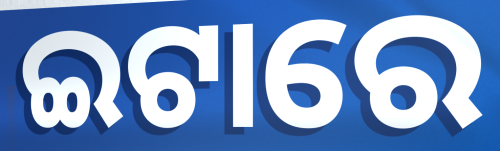
ଇଟାରେ